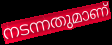
നടന്നതുമാണ്